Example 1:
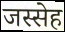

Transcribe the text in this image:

जस्सेह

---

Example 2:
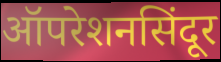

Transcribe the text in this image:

ऑपरेशनसिंदूर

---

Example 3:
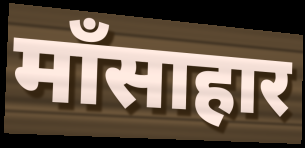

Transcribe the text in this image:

माँसाहार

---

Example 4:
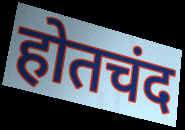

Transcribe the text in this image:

होतचंद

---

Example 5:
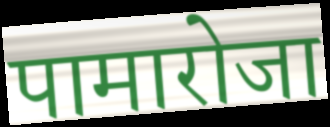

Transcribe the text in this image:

पामारोजा